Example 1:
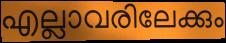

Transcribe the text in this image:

എല്ലാവരിലേക്കും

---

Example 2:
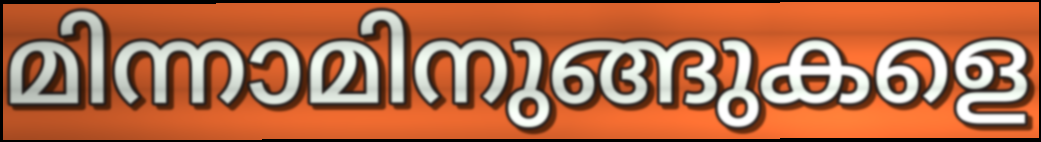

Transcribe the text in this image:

മിന്നാമിനുങ്ങുകളെ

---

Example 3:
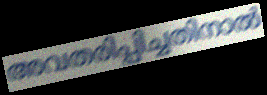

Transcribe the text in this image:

അവതരിപ്പിച്ചതിനാൽ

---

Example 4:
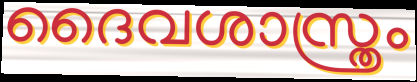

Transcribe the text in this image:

ദൈവശാസ്ത്രം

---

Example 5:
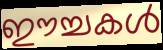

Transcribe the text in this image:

ഈച്ചകൾ